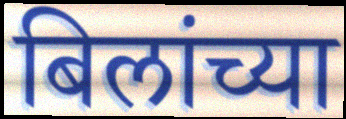
बिलांच्या